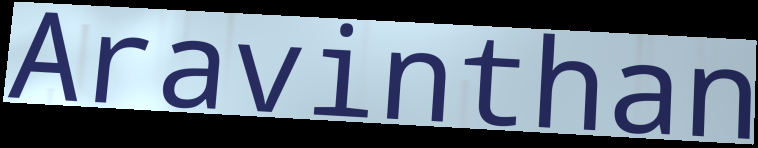
Aravinthan